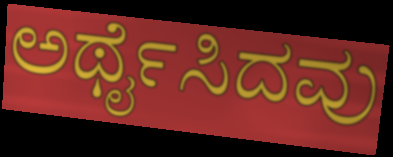
ಅರ್ಥೈಸಿದವು